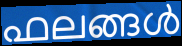
ഫലങ്ങൾ